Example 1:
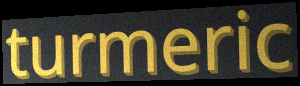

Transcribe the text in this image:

turmeric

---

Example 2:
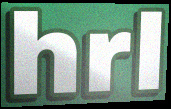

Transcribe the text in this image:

hrl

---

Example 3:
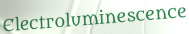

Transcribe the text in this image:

Electroluminescence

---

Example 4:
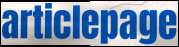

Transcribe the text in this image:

articlepage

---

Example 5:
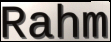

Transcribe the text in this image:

Rahm